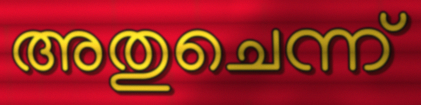
അതുചെന്ന്